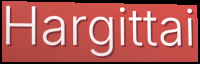
Hargittai